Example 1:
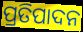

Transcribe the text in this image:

ପ୍ରତିପାଦନ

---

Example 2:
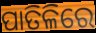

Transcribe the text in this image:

ପାତିଳିରେ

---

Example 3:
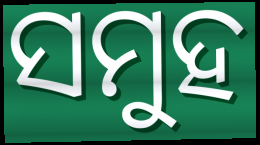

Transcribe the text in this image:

ସମୁହ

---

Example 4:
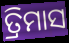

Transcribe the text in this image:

ତ୍ରିମାସ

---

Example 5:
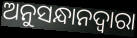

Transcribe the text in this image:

ଅନୁସନ୍ଧାନଦ୍ୱାରା